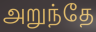
அறுந்தே